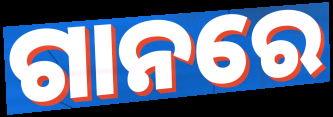
ଗାନରେ